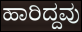
ಹಾರಿದ್ದವು